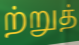
ற்றுத்